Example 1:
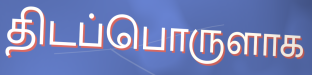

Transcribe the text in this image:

திடப்பொருளாக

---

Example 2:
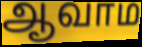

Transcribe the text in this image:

ஆவாம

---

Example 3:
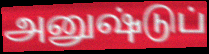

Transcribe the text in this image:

அனுஷ்டுப்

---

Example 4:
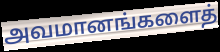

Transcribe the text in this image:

அவமானங்களைத்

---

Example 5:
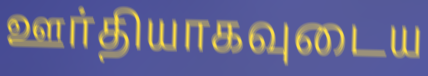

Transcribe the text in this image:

ஊர்தியாகவுடைய